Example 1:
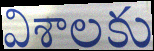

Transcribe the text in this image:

విశాలకు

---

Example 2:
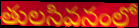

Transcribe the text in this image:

తులసివనంలో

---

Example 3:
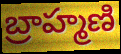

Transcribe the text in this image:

బ్రాహ్మణి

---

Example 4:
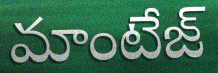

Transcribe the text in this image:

మాంటేజ్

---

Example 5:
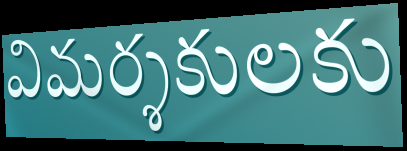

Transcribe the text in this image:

విమర్శకులకు